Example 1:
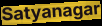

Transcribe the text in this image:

Satyanagar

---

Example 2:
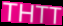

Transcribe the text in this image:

THTT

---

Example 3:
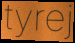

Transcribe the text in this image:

tyrej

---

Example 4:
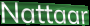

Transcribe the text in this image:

Nattaar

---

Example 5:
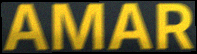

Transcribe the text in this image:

AMAR